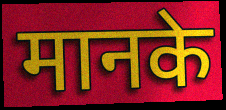
मानके